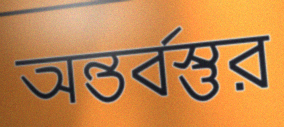
অন্তর্বস্তুর